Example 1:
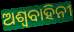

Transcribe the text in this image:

ଅଶ୍ୱବାହିନୀ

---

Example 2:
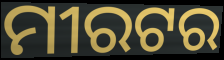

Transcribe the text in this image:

ମୀରଟର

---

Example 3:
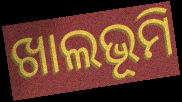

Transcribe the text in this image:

ଖାଲଭୂମି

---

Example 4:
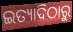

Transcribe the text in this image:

ଇତ୍ୟାଦିଠାରୁ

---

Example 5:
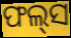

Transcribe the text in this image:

ଫଲ୍‌ସ